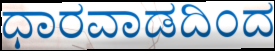
ಧಾರವಾಡದಿಂದ